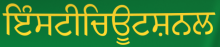
ਇੰਸਟੀਚਿਊਟਸ਼ਨਲ